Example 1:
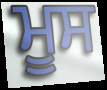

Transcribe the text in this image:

ਮੂਸ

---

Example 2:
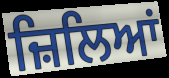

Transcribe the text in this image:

ਜ਼ਿਲਿਆਂ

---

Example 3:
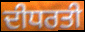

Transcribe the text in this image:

ਦੀਧਰਤੀ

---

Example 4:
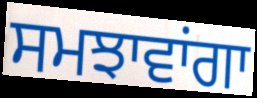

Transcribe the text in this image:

ਸਮਝਾਵਾਂਗਾ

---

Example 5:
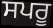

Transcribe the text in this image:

ਸਪਰੂ